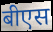
बीएस